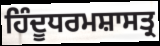
ਹਿੰਦੂਧਰਮਸ਼ਾਸਤ੍ਰ